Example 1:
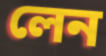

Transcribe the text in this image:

লেন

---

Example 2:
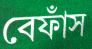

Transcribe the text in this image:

বেফাঁস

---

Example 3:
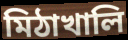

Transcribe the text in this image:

মিঠাখালি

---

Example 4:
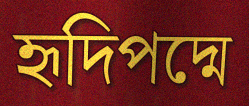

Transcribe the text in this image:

হৃদিপদ্মে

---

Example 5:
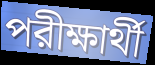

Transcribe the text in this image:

পরীক্ষার্থী